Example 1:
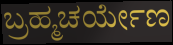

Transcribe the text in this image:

ಬ್ರಹ್ಮಚರ್ಯೇಣ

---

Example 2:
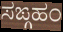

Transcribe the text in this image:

ಸಙ್ಗಹಂ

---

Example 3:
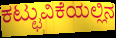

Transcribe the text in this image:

ಕಟ್ಟುವಿಕೆಯಲ್ಲಿನ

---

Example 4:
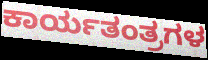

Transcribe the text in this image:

ಕಾರ್ಯತಂತ್ರಗಳ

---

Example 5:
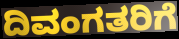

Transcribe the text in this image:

ದಿವಂಗತರಿಗೆ